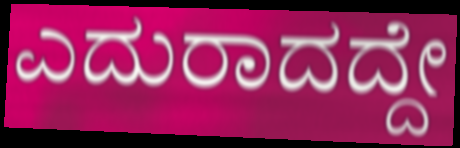
ಎದುರಾದದ್ದೇ